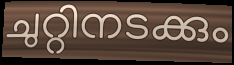
ചുറ്റിനടക്കും